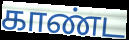
காண்ட